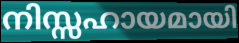
നിസ്സഹായമായി